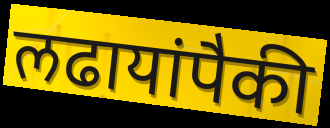
लढायांपैकी